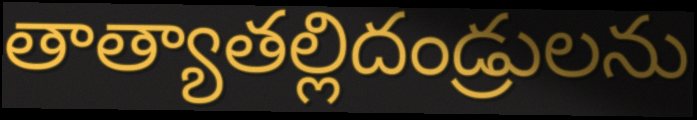
తాత్యాతల్లిదండ్రులను